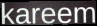
kareem